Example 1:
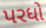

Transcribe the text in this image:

પરધો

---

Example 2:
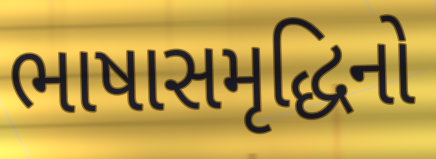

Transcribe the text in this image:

ભાષાસમૃદ્ધિનો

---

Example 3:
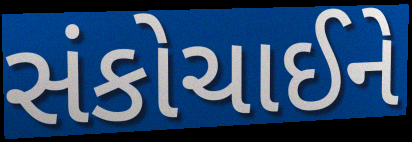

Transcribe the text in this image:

સંકોચાઈને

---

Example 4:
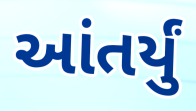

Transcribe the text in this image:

આંતર્યું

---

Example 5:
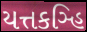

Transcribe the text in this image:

યત્તકઞ્હિ